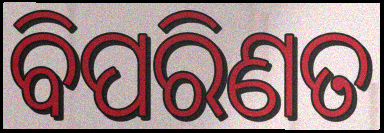
ବିପରିଣତ